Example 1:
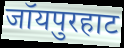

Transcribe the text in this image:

जॉयपुरहाट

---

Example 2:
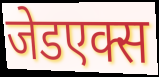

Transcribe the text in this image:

जेडएक्स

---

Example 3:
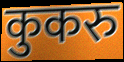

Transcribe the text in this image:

कुकरु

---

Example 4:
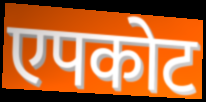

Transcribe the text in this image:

एपकोट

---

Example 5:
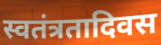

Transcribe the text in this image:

स्वतंत्रतादिवस